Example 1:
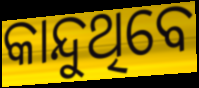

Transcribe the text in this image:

କାନ୍ଦୁଥିବେ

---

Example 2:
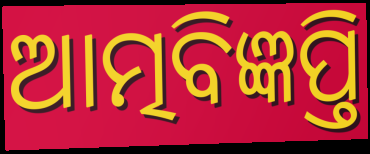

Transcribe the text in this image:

ଆତ୍ମବିଜ୍ଞପ୍ତି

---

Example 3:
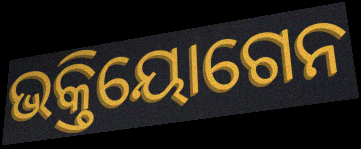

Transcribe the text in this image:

ଭକ୍ତିୟୋଗେନ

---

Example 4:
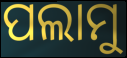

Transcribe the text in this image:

ପଲାମୁ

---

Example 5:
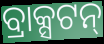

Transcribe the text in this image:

ବ୍ରାକ୍ସଟନ୍